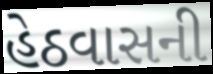
હેઠવાસની